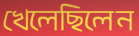
খেলেছিলেন